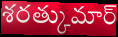
శరత్కుమార్